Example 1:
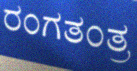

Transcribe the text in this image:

ರಂಗತಂತ್ರ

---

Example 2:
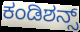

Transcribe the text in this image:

ಕಂಡಿಶನ್ಸ್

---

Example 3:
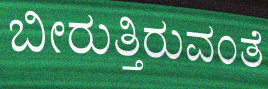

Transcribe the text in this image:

ಬೀರುತ್ತಿರುವಂತೆ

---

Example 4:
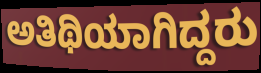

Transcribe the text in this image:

ಅತಿಥಿಯಾಗಿದ್ದರು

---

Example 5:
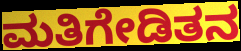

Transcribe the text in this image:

ಮತಿಗೇಡಿತನ